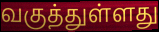
வகுத்துள்ளது